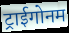
ट्राईगोनम